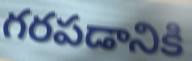
గరపడానికి